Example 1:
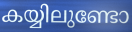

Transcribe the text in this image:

കയ്യിലുണ്ടോ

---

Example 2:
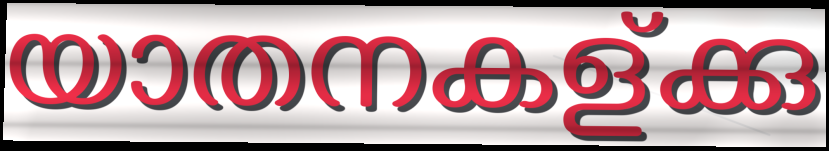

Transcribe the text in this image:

യാതനകള്ക്കു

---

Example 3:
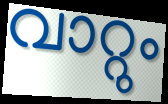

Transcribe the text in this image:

വാറ്റും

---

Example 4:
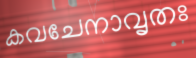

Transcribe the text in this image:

കവചേനാവൃതഃ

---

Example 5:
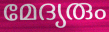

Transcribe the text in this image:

മേദ്യരും